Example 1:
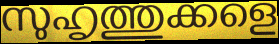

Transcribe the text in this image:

സുഹൃത്തുക്കളെ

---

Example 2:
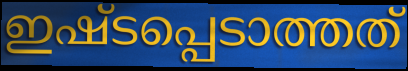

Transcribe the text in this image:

ഇഷ്ടപ്പെടാത്തത്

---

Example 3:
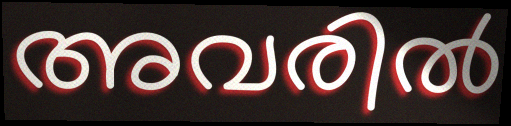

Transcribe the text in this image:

അവരിൽ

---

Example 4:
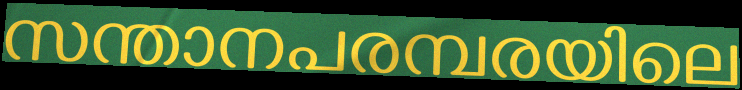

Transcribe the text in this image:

സന്താനപരമ്പരയിലെ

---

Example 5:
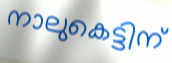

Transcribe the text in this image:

നാലുകെട്ടിന്